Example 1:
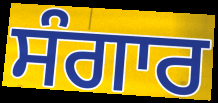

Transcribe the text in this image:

ਸੰਗਾਰ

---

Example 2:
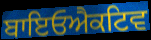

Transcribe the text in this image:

ਬਾਇਓਐਕਟਿਵ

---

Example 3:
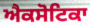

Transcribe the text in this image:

ਐਕਸੋਟਿਕਾ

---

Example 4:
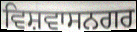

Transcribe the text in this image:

ਵਿਸ਼ਵਾਸਨਗਰ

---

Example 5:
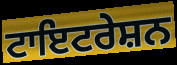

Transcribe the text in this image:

ਟਾਇਟਰੇਸ਼ਨ